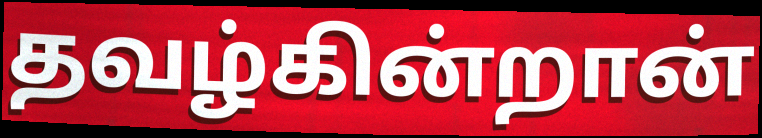
தவழ்கின்றான்